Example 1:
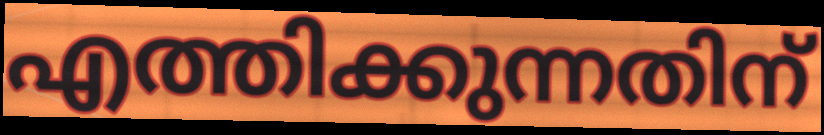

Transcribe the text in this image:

എത്തിക്കുന്നതിന്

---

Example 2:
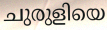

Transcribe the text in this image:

ചുരുളിയെ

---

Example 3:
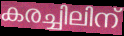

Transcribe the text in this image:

കരച്ചിലിന്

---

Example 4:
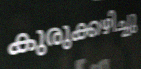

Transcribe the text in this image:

കുരുക്കഴിച്ചു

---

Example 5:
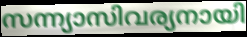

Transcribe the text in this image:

സന്ന്യാസിവര്യനായി